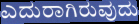
ಎದುರಾಗಿರುವುದು